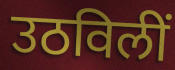
उठविलीं